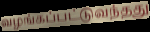
வழங்கப்பட்டுவந்தது